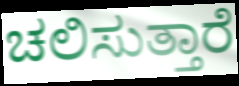
ಚಲಿಸುತ್ತಾರೆ